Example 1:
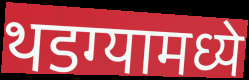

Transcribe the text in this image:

थडग्यामध्ये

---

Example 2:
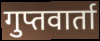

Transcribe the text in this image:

गुप्तवार्ता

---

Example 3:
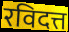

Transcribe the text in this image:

रविदत्त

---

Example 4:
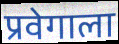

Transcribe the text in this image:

प्रवेगाला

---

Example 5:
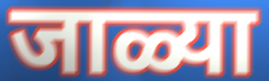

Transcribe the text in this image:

जाळ्या